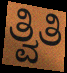
ತ್ವಿತಿ